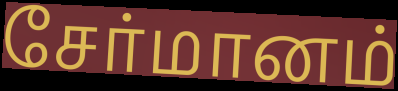
சேர்மானம்